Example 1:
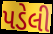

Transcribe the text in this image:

પડેલી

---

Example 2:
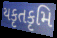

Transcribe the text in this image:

યકૃતકૃમિ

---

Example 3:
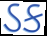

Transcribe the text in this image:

ડક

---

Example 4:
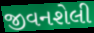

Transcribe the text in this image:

જીવનશેલી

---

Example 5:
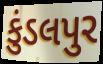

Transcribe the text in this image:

કુંડલપુર